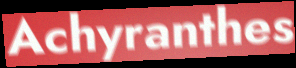
Achyranthes